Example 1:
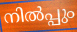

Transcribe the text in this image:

നിൽപ്പും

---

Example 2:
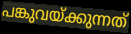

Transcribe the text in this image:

പങ്കുവയ്ക്കുന്നത്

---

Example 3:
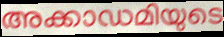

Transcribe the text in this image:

അക്കാഡമിയുടെ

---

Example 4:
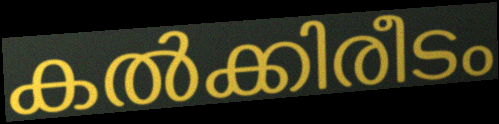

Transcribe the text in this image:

കൽക്കിരീടം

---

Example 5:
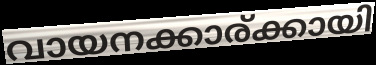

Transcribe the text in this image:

വായനക്കാര്ക്കായി